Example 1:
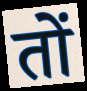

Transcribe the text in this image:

तों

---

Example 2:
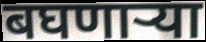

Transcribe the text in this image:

बघणाऱ्या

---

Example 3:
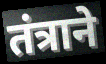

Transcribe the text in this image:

तंत्राने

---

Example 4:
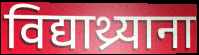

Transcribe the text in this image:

विद्याथ्र्याना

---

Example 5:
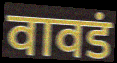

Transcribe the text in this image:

वावडं